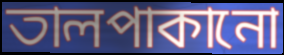
তালপাকানো